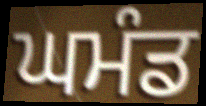
ਘਮੰਡ